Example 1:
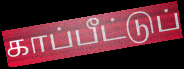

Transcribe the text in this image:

காப்பீட்டுப்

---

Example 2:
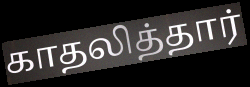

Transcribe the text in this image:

காதலித்தார்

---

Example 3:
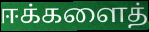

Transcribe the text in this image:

ஈக்களைத்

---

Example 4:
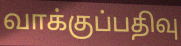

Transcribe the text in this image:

வாக்குப்பதிவு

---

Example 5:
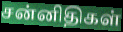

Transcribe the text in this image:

சன்னிதிகள்